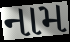
નામ